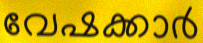
വേഷക്കാർ